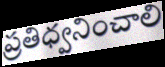
ప్రతిధ్వనించాలి